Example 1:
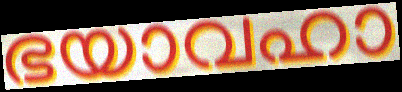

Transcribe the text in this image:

ഭയാവഹാ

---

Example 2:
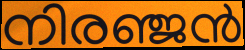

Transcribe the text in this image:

നിരഞ്ജൻ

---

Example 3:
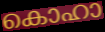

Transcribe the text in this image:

കൊഹാ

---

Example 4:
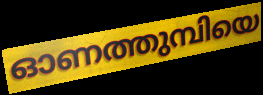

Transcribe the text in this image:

ഓണത്തുമ്പിയെ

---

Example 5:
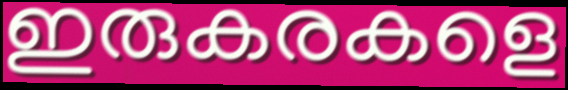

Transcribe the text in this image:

ഇരുകരകളെ